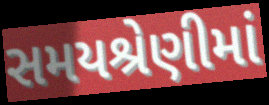
સમયશ્રેણીમાં